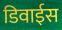
डिवाईस